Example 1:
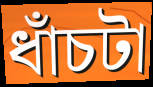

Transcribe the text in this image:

ধাঁচটা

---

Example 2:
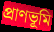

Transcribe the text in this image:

প্রাণভূমি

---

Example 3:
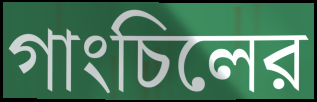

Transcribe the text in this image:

গাংচিলের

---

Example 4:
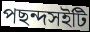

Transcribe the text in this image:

পছন্দসইটি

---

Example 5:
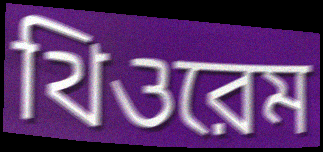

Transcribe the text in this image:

থিওরেম